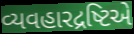
વ્યવહારદ્રષ્ટિએ